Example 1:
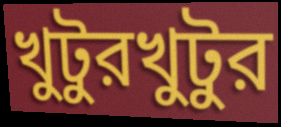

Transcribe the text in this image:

খুটুরখুটুর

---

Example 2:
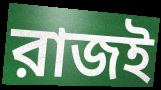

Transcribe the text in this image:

রাজই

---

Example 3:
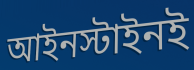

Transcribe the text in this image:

আইনস্টাইনই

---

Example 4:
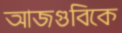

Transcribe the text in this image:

আজগুবিকে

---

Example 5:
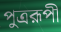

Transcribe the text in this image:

পুত্ররূপী